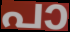
പാ